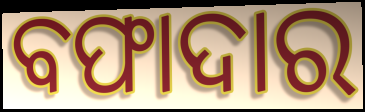
ବଫାଦାର